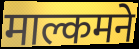
माल्कमने